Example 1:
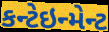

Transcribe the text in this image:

કન્ટેઇન્મેન્ટ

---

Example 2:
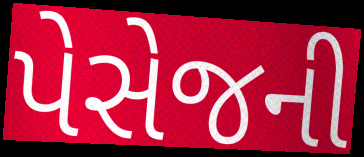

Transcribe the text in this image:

પેસેજની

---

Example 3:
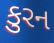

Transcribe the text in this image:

કુરન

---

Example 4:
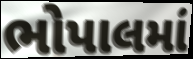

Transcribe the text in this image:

ભોપાલમાં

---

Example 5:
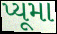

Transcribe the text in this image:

પ્યૂમા